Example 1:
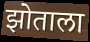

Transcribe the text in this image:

झोताला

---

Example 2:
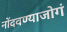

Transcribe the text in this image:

नोंदवण्याजोगं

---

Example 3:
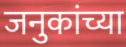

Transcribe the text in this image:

जनुकांच्या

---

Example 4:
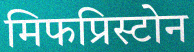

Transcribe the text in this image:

मिफप्रिस्टोन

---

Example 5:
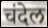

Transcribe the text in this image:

चंदेल